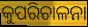
କୁପରିଚାଳନା